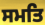
ਸਮਤਿ